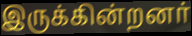
இருக்கின்றனர்